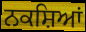
ਨਕਸ਼ਿਆਂ